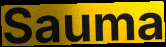
Sauma